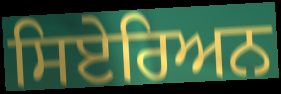
ਸਿਏਰਿਅਨ